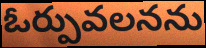
ఓర్పువలనను